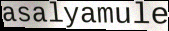
asalyamule